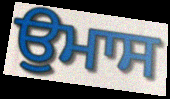
ਉਮਾਸ